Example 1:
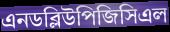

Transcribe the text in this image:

এনডব্লিউপিজিসিএল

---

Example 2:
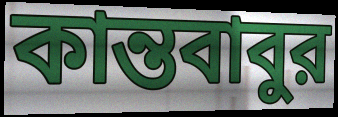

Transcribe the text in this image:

কান্তবাবুর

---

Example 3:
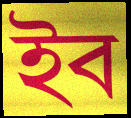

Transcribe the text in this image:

ইব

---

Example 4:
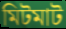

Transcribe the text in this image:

মিটমাট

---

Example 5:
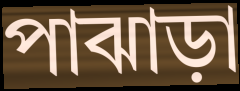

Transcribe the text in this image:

পাঝাড়া